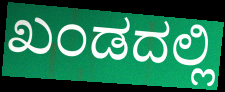
ಖಂಡದಲ್ಲಿ